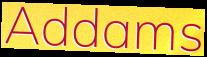
Addams